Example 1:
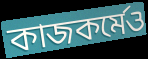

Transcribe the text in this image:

কাজকর্মেও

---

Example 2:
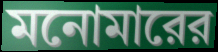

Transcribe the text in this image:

মনোমারের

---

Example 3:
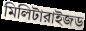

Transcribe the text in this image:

মিলিটারাইজড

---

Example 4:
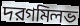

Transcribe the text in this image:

দরগমিলভ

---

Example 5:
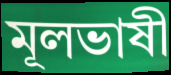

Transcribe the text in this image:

মূলভাষী